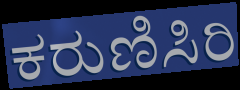
ಕರುಣಿಸಿರಿ